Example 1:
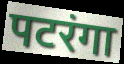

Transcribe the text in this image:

पटरंगा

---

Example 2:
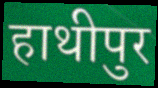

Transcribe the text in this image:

हाथीपुर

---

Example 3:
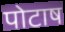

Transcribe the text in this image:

पोटाष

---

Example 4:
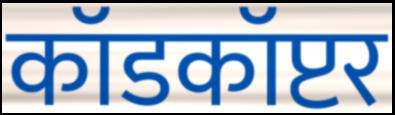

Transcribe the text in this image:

कॉडकॉप्टर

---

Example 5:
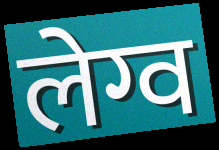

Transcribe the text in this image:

लेग्व